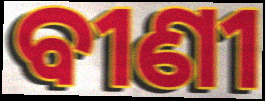
ବୀଣୀ